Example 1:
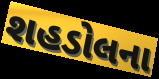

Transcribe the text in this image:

શહડોલના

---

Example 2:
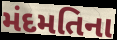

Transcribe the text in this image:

મંદમતિના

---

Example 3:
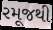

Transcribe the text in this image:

રમૂજથી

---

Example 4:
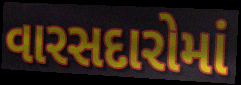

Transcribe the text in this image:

વારસદારોમાં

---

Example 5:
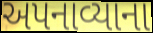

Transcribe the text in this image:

અપનાવ્યાના